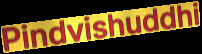
Pindvishuddhi